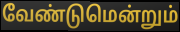
வேண்டுமென்றும்